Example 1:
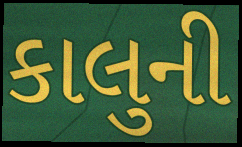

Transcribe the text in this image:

કાલુની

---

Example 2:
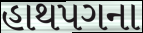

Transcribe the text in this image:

હાથપગના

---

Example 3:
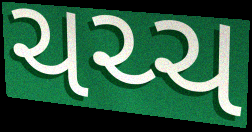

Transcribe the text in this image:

ચચ્ચ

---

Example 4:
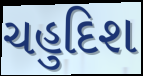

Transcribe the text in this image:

ચહુદિશ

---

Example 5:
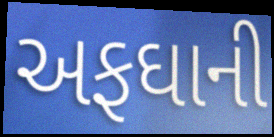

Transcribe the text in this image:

અફઘાની